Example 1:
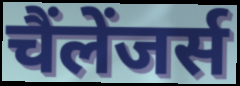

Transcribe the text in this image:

चैंलेंजर्स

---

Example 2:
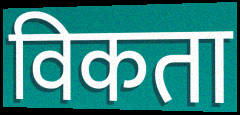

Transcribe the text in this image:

विकता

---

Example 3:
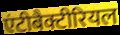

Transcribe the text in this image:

एंटीबैक्टीरियल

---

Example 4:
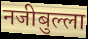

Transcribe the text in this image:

नजीबुल्ला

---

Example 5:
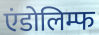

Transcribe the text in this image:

एंडोलिम्फ